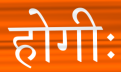
होगीः